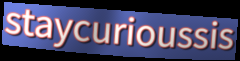
staycurioussis